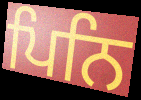
ਪਿਨਿ